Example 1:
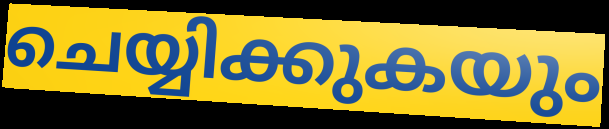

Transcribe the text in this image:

ചെയ്യിക്കുകയും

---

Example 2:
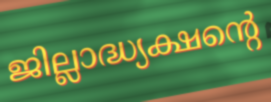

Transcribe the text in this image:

ജില്ലാദ്ധ്യക്ഷന്റെ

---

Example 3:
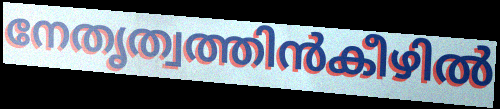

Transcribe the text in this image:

നേതൃത്വത്തിൻകീഴിൽ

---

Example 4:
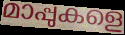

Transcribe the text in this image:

മാപ്പുകളെ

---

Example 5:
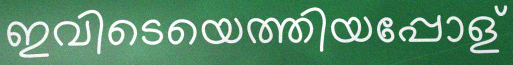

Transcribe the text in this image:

ഇവിടെയെത്തിയപ്പോള്